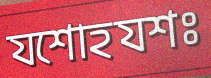
যশোহযশঃ